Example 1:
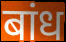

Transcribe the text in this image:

बांध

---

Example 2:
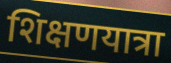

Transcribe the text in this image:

शिक्षणयात्रा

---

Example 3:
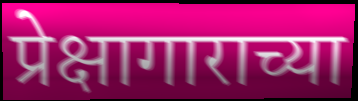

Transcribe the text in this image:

प्रेक्षागाराच्या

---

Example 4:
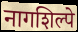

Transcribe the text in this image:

नागशिल्पे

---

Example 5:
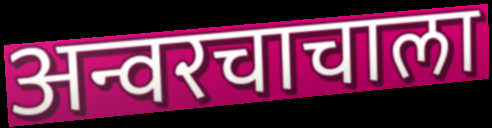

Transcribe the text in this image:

अन्वरचाचाला